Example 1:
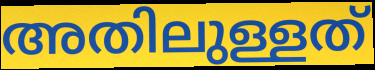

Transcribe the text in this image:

അതിലുള്ളത്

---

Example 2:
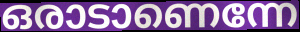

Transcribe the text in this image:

ഒരാടാണെന്നേ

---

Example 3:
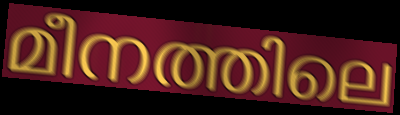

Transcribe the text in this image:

മീനത്തിലെ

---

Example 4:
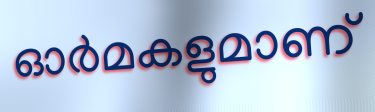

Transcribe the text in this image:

ഓർമകളുമാണ്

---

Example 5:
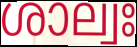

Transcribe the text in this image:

ശാല്വഃ